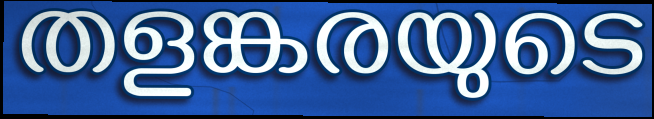
തളങ്കരയുടെ